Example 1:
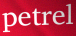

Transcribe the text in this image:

petrel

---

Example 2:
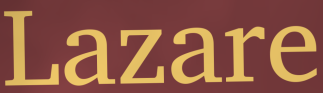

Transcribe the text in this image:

Lazare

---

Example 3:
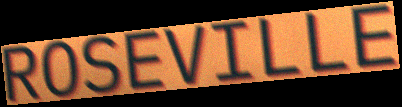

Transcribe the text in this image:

ROSEVILLE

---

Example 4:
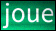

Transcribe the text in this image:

joue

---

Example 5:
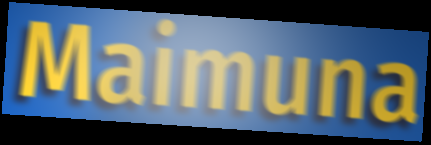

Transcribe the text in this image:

Maimuna